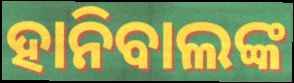
ହାନିବାଲଙ୍କ